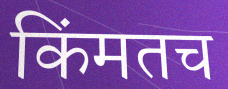
किंमतच